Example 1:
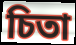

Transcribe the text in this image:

চিতা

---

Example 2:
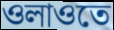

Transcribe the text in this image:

ওলাওতে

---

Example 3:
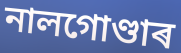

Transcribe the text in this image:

নালগোণ্ডাৰ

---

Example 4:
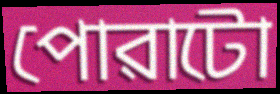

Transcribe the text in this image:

পোৱাটো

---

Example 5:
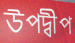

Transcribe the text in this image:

উপদ্বীপ